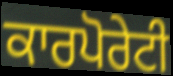
ਕਾਰਪੋਰੇਟੀ